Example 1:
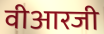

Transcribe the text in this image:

वीआरजी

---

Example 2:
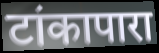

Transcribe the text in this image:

टांकापारा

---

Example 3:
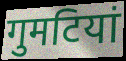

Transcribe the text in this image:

गुमटियां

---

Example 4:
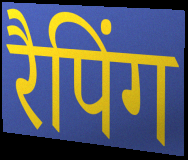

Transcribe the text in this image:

रैपिंग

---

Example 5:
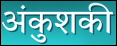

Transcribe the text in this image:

अंकुशकी